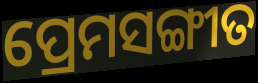
ପ୍ରେମସଙ୍ଗୀତ